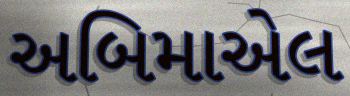
અબિમાએલ